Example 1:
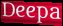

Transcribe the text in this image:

Deepa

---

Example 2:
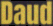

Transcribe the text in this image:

Daud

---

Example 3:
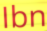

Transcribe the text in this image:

Ibn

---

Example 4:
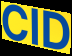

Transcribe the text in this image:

CID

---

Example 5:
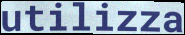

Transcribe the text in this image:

utilizza